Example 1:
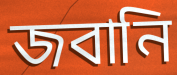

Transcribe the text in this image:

জবানি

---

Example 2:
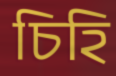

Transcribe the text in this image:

চিহি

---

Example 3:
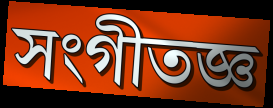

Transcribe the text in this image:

সংগীতজ্ঞ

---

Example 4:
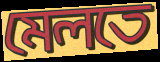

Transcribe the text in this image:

মেলতে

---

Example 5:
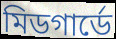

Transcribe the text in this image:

মিডগার্ডে